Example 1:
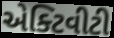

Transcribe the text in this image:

એક્ટિવીટી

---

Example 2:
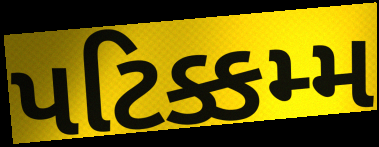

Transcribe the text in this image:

પટિક્કમ્મ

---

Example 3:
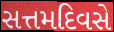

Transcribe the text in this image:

સત્તમદિવસે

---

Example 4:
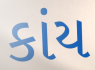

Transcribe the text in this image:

કાંય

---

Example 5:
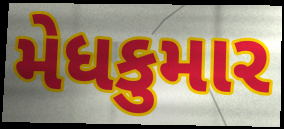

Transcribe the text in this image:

મેધકુમાર